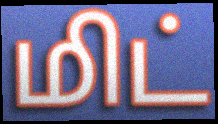
மிட்